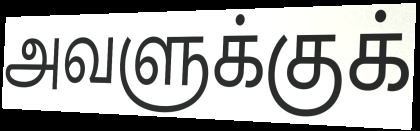
அவளுக்குக்